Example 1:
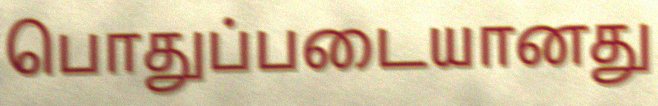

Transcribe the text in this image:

பொதுப்படையானது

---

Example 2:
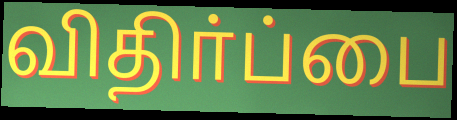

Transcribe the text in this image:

விதிர்ப்பை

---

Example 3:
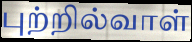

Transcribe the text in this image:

புற்றில்வாள்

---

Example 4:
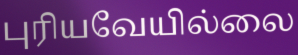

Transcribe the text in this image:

புரியவேயில்லை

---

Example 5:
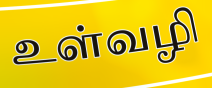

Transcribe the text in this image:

உள்வழி